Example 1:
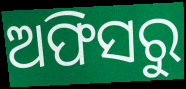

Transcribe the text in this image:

ଅଫିସରୁ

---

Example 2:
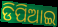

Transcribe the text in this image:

ଡିପିଆଇ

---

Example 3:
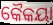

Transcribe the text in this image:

କୈକୟା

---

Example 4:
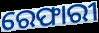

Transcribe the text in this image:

ରେଫାରୀ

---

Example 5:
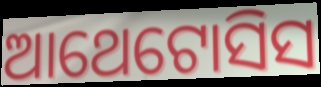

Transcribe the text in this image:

ଆଥେଟୋସିସ